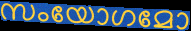
സംയോഗമോ